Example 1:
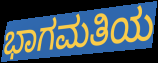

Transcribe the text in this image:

ಭಾಗಮತಿಯ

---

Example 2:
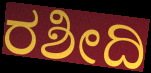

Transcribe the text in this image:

ರಶೀದಿ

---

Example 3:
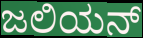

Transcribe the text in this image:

ಜಲಿಯನ್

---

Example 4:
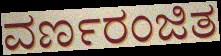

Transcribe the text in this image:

ವರ್ಣರಂಜಿತ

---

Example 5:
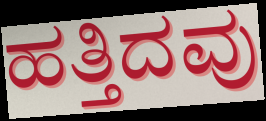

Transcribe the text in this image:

ಹತ್ತಿದವು